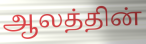
ஆலத்தின்